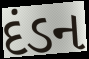
દંડન